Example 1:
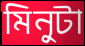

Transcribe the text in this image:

মিনুটা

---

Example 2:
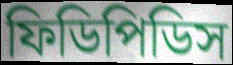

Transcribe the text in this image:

ফিডিপিডিস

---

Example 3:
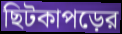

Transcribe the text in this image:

ছিটকাপড়ের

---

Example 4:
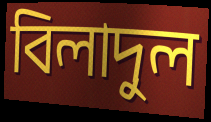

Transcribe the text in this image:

বিলাদুল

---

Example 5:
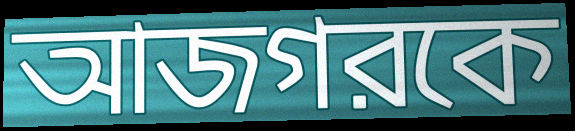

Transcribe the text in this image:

আজগরকে